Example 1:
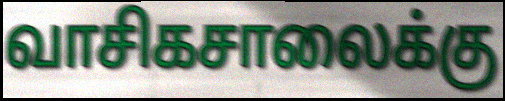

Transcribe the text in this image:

வாசிகசாலைக்கு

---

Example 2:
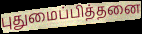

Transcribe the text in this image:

புதுமைப்பித்தனை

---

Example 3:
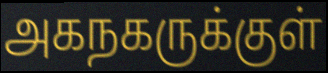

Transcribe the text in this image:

அகநகருக்குள்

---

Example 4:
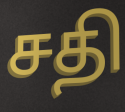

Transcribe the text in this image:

சதி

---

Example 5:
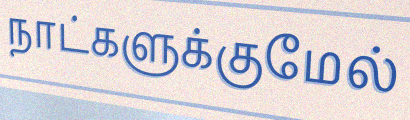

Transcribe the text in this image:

நாட்களுக்குமேல்